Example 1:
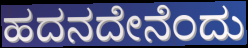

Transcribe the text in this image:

ಹದನದೇನೆಂದು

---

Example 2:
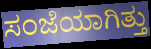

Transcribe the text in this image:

ಸಂಜೆಯಾಗಿತ್ತು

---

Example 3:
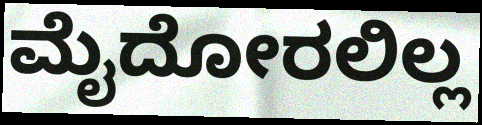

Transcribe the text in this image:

ಮೈದೋರಲಿಲ್ಲ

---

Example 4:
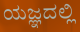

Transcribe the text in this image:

ಯಜ್ಞದಲ್ಲಿ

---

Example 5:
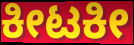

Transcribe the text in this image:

ಕೀಟಕೀ